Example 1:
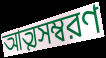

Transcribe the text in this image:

আত্মসম্বরণ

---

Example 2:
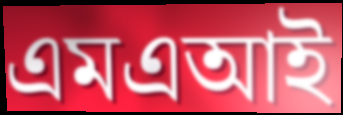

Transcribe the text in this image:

এমএআই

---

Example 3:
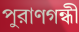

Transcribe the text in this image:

পুরাণগন্ধী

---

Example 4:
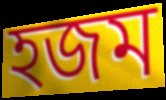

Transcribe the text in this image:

হজম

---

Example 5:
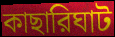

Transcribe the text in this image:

কাছারিঘাট